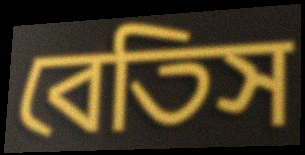
বেতিস